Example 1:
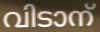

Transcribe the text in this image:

വിടാന്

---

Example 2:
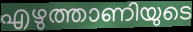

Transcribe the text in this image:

എഴുത്താണിയുടെ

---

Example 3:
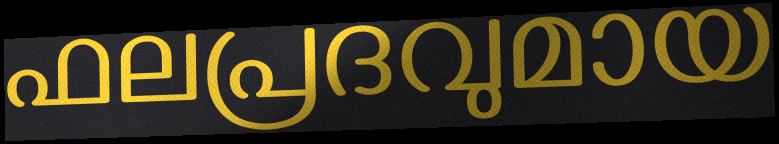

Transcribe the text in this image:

ഫലപ്രദവുമായ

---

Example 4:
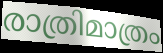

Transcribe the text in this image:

രാത്രിമാത്രം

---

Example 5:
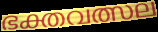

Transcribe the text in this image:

ഭക്തവത്സല